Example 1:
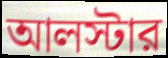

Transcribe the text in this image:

আলস্টার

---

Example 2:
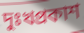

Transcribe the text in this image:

দুঃখপ্রকাশ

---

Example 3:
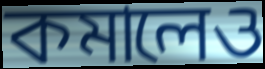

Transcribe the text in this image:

কমালেও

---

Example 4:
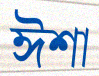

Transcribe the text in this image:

ঈশা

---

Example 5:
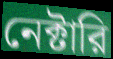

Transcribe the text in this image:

নেক্টারি